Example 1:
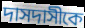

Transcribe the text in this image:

দাসদাসীকে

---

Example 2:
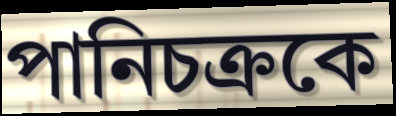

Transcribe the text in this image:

পানিচক্রকে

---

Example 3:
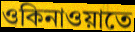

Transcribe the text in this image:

ওকিনাওয়াতে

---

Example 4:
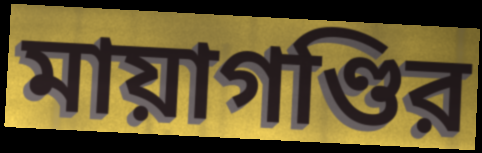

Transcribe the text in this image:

মায়াগণ্ডির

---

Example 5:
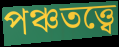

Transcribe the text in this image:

পঞ্চতত্ত্বে